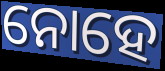
ନୋହେ